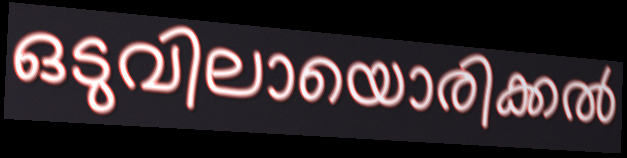
ഒടുവിലായൊരിക്കൽ